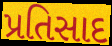
પ્રતિસાદ